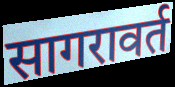
सागरावर्त